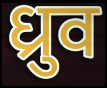
ध्रुव